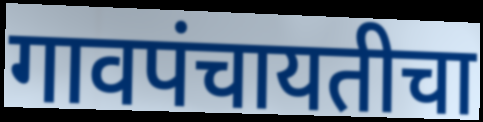
गावपंचायतीचा